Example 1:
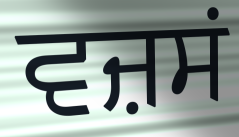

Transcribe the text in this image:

ਵਜ਼ਸਂ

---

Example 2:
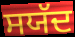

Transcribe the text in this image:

ਸਯੱਦ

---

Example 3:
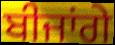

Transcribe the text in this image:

ਬੀਜਾਂਗੇ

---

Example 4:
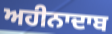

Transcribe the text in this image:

ਅਹੀਨਾਦਾਬ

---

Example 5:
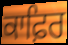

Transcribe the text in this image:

ਕਾਫ਼ਿਰ